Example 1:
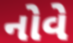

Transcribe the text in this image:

નોવે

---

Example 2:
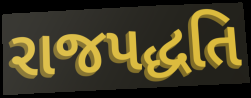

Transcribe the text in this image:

રાજપદ્ધતિ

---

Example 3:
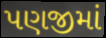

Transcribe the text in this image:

પણજીમાં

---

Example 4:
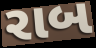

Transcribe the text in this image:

રાબ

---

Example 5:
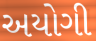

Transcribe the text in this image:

અયોગી